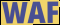
WAF